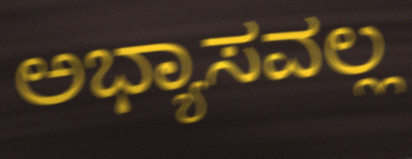
ಅಭ್ಯಾಸವಲ್ಲ